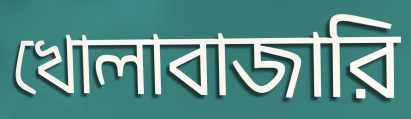
খোলাবাজারি